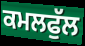
ਕਮਲਫੁੱਲ